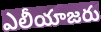
ఎలీయాజరు